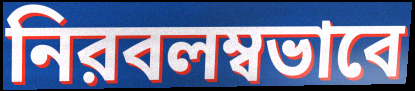
নিরবলম্বভাবে